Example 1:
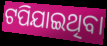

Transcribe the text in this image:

ଟପିଯାଇଥିବା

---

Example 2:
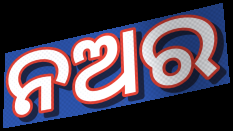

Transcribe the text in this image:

ନଅର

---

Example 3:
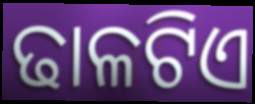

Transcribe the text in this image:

ଢାଳଟିଏ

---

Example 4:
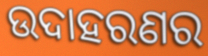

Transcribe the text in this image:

ଉଦାହରଣର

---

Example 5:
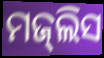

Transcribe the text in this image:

ମଜ୍‌ଲିସ